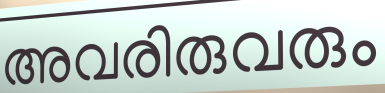
അവരിരുവരും